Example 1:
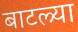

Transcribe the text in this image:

बाटल्या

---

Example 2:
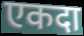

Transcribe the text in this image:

एकदा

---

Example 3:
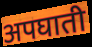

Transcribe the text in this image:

अपघाती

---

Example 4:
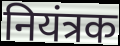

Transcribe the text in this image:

नियंत्रक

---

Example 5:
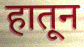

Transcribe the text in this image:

हातून